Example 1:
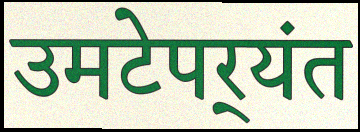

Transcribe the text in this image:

उमटेपर्यंत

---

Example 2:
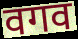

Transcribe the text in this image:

वगव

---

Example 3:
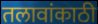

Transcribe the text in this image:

तलावांकाठी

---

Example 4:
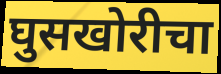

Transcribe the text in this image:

घुसखोरीचा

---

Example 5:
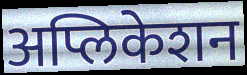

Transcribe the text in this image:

अप्लिकेशन